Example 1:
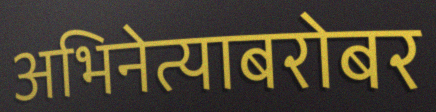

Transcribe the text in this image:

अभिनेत्याबरोबर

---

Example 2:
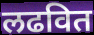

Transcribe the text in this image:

लढवित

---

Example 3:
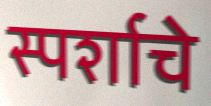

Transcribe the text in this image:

स्पर्शाचे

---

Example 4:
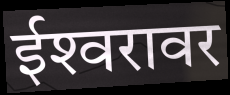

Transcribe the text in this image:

ईश्‍वरावर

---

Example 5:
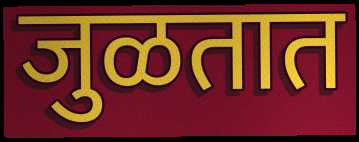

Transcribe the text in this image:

जुळतात